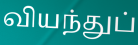
வியந்துப்